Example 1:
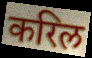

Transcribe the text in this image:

करिल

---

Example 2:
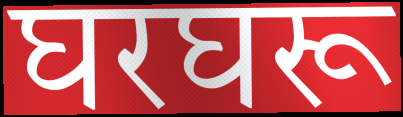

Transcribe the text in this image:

घरघरू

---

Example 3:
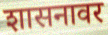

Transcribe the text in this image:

शासनावर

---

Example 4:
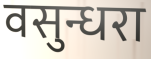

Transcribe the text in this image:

वसुन्धरा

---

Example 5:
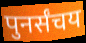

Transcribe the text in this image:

पुनर्संचय